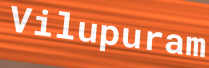
Vilupuram